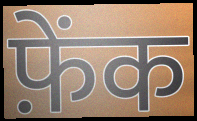
फ़ेंक